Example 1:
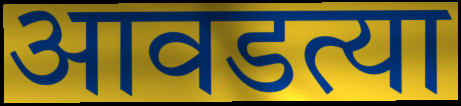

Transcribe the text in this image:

आवडत्या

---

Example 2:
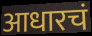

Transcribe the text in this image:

आधारचं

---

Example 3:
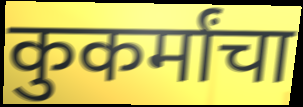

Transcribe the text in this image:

कुकर्मांचा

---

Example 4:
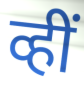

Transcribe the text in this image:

व्हीं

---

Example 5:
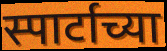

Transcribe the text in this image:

स्पार्टाच्या